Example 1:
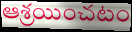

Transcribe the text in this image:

ఆశ్రయించటం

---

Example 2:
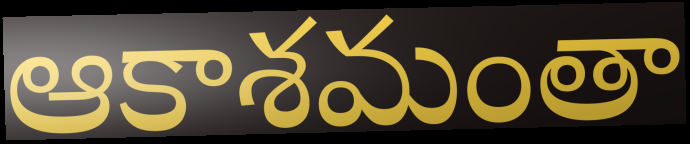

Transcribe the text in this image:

ఆకాశమంతా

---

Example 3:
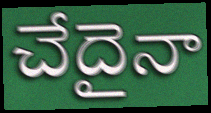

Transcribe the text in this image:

చేదైనా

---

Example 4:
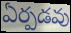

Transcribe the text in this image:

ఏర్పడవు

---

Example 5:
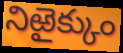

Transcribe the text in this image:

నిఱైక్కుం